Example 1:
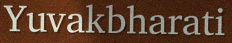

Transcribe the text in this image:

Yuvakbharati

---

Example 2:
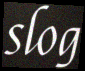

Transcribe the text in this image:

slog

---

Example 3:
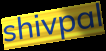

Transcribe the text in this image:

shivpal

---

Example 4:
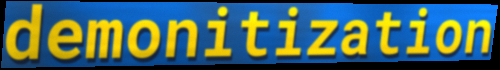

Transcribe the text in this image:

demonitization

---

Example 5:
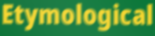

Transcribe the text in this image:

Etymological